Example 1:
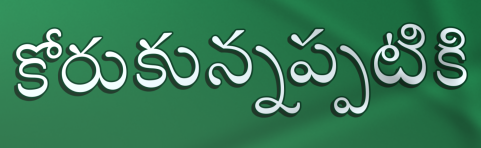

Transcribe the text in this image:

కోరుకున్నప్పటికి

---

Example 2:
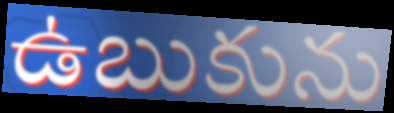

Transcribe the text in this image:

ఉబుకును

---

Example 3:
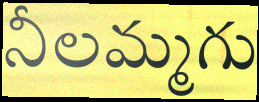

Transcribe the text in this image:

నీలమ్మగు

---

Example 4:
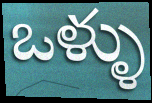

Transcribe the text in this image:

ఒళ్ళు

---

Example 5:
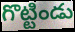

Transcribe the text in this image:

గొట్టిండు